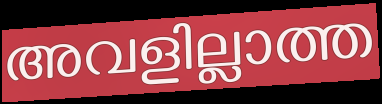
അവളില്ലാത്ത